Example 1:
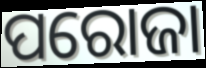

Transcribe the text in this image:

ପରୋଜା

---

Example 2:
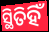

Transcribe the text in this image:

ସ୍ଥିତିହିଁ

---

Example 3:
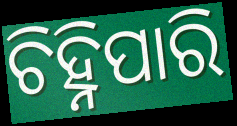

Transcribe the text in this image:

ଚିହ୍ନିପାରି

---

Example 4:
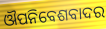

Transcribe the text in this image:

ଔପନିବେଶବାଦର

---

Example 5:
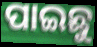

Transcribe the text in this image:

ପାଇଛୁ